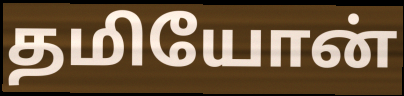
தமியோன்